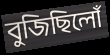
বুজিছিলোঁ